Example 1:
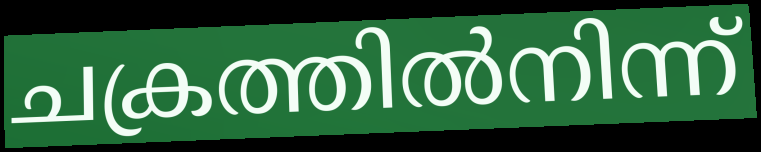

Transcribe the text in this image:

ചക്രത്തിൽനിന്ന്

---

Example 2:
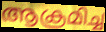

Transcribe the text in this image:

ആക്രമിച്ച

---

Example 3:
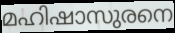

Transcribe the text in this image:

മഹിഷാസുരനെ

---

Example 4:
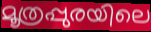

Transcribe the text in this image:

മൂത്രപ്പുരയിലെ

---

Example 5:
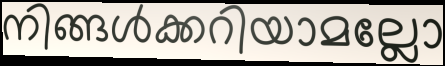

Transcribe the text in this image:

നിങ്ങൾക്കറിയാമല്ലോ